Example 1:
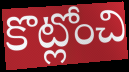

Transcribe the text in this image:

కొట్లోంచి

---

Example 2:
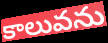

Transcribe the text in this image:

కాలువను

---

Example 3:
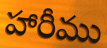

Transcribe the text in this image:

హారీము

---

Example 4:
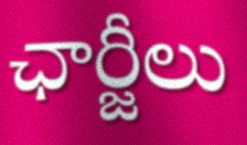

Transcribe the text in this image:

ఛార్జీలు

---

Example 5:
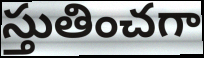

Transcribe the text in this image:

స్తుతించగా